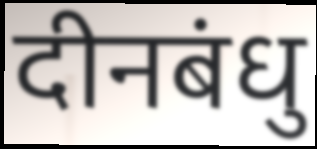
दीनबंधु